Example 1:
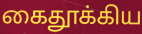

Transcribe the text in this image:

கைதூக்கிய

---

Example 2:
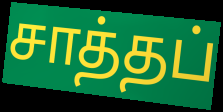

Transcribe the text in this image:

சாத்தப்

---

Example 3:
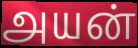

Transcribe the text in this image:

அயன்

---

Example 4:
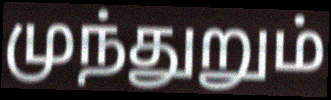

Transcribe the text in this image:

முந்துறும்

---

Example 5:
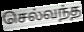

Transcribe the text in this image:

செல்வந்த